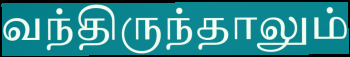
வந்திருந்தாலும்